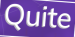
Quite